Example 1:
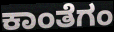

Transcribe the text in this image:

ಕಾಂತೆಗಂ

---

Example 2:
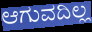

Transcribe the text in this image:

ಆಗುವದಿಲ್ಲ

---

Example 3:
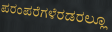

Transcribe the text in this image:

ಪರಂಪರೆಗಳೆರಡರಲ್ಲೂ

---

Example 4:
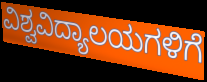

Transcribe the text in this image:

ವಿಶ್ವವಿದ್ಯಾಲಯಗಳಿಗೆ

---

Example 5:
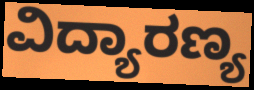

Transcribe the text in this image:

ವಿದ್ಯಾರಣ್ಯ